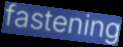
fastening